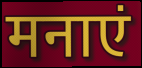
मनाएं